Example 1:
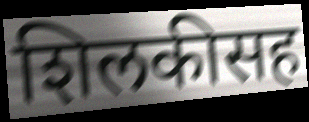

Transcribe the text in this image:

शिलकीसह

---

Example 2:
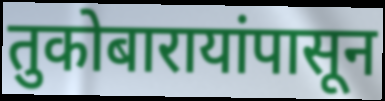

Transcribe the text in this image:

तुकोबारायांपासून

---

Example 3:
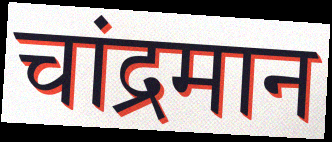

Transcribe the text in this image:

चांद्रमान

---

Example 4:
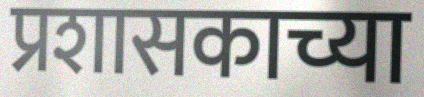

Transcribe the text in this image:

प्रशासकाच्या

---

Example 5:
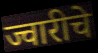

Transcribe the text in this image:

ज्वारीचे